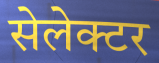
सेलेक्‍टर